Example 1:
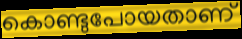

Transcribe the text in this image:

കൊണ്ടുപോയതാണ്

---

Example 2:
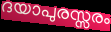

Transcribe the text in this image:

ദയാപുരസ്സരം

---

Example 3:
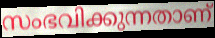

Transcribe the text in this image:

സംഭവിക്കുന്നതാണ്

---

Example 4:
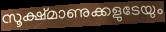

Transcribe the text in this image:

സൂക്ഷ്മാണുക്കളുടേയും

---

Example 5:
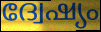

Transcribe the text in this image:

ദ്വേഷ്യം